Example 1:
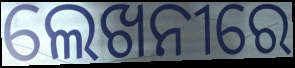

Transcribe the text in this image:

ଲେଖନୀରେ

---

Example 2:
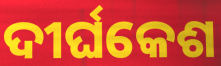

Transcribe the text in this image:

ଦୀର୍ଘକେଶ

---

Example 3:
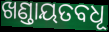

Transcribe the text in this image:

ଖଣ୍ଡାୟତବଧୂ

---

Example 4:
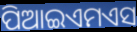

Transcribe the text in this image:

ପିଆଇଏମଏସ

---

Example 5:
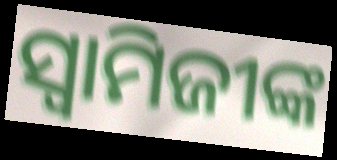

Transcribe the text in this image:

ସ୍ବାମିଜୀଙ୍କ